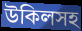
উকিলসহ